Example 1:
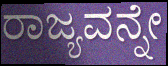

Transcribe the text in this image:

ರಾಜ್ಯವನ್ನೇ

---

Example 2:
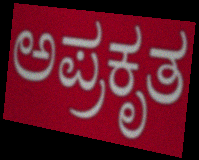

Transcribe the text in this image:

ಅಪ್ರಕೃತ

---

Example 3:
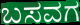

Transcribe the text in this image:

ಬಸವಗ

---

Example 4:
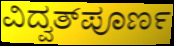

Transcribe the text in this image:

ವಿದ್ವತ್‌ಪೂರ್ಣ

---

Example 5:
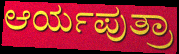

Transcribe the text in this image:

ಆರ್ಯಪುತ್ರಾ